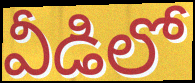
వీడిలో